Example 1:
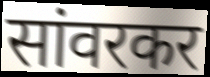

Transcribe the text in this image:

सांवरकर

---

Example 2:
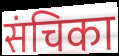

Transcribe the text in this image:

संचिका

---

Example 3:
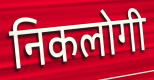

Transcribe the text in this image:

निकलोगी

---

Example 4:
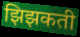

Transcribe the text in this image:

झिझकती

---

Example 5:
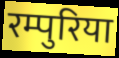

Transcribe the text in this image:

रम्पुरिया